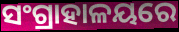
ସଂଗ୍ରାହାଳୟରେ